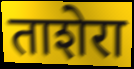
ताशेरा